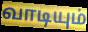
வாடியும்